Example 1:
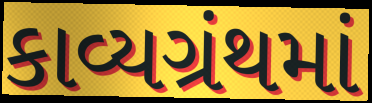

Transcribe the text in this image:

કાવ્યગ્રંથમાં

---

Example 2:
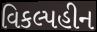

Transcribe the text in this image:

વિકલ્પહીન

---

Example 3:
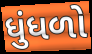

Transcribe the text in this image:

ધુંધળો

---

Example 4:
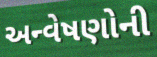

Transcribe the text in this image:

અન્વેષણોની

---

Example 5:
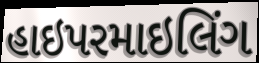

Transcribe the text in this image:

હાઇપરમાઇલિંગ